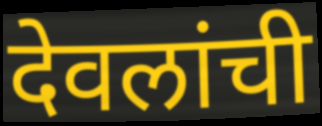
देवलांची